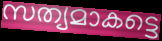
സത്യമാകട്ടെ